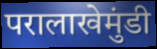
परालाखेमुंडी